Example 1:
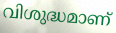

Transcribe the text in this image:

വിശുദ്ധമാണ്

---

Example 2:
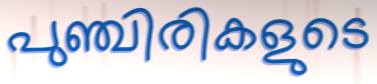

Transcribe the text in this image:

പുഞ്ചിരികളുടെ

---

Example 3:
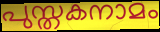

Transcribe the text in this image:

പുസ്തകനാമം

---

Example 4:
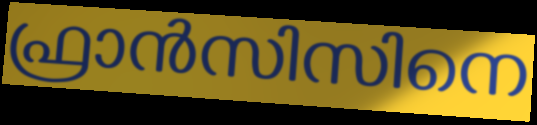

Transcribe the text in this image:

ഫ്രാൻസിസിനെ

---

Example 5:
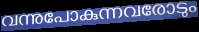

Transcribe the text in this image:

വന്നുപോകുന്നവരോടും